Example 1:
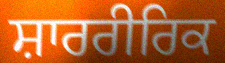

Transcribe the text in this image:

ਸ਼ਾਰਰੀਰਿਕ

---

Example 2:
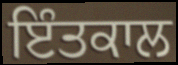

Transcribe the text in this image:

ਇੰਤਕਾਲ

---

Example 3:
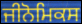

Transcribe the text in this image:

ਜੀਨੋਮਿਕਸ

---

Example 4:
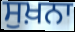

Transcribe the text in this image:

ਸੁਖ਼ਨਾ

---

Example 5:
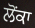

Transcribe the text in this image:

ਲੋਂਕਾ